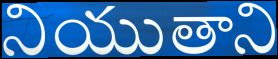
నియుతాని